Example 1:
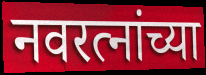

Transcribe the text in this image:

नवरत्नांच्या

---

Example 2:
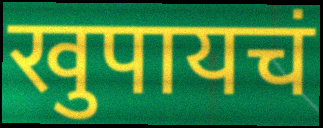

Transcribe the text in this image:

खुपायचं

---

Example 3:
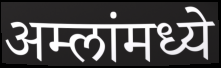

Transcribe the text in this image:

अम्लांमध्ये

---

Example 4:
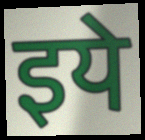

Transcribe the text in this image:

इये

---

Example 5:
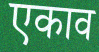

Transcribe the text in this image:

एकाव